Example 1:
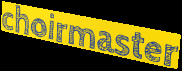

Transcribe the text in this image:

choirmaster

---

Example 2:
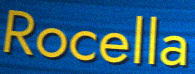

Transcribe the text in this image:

Rocella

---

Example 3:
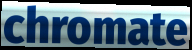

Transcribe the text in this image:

chromate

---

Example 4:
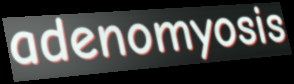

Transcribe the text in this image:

adenomyosis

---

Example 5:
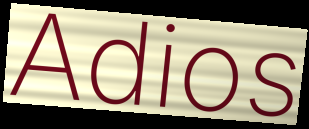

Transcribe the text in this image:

Adios